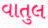
વાતુલ